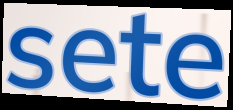
sete